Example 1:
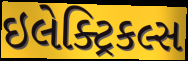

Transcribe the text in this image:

ઇલેક્ટ્રિકલ્સ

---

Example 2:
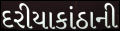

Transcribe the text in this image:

દરીયાકાંઠાની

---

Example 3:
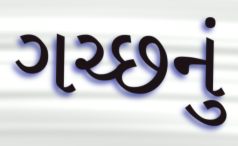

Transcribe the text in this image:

ગચ્છનું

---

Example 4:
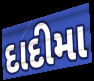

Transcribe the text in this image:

દાદીમા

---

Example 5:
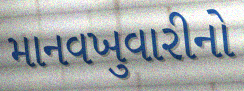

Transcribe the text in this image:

માનવખુવારીનો